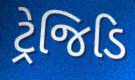
ટ્રેજિડિ